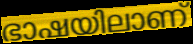
ഭാഷയിലാണ്